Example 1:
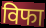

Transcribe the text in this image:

विफा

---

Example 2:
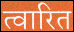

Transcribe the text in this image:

त्वारित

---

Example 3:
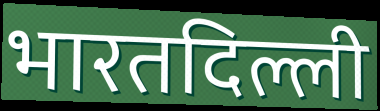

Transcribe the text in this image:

भारतदिल्ली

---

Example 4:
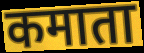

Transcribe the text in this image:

कमाता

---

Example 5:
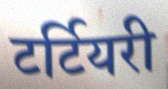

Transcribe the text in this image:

टर्टियरी